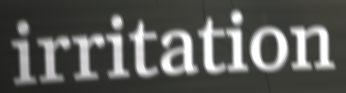
irritation